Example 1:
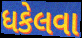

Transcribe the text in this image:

ધકેલવા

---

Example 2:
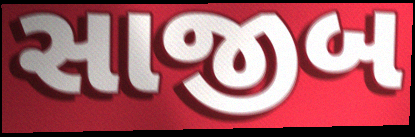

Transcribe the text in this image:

સાજીબ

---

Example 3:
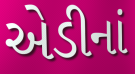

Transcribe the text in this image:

એડીનાં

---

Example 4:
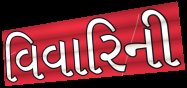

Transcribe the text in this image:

વિવારિની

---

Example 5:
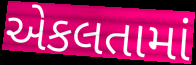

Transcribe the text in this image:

એકલતામાં